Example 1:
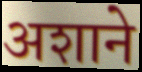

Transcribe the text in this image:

अशाने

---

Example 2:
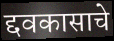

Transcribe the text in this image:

द्दवकासाचे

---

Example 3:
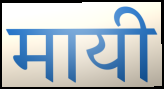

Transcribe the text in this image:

मायी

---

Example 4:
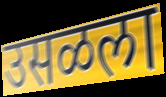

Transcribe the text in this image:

उसळला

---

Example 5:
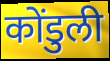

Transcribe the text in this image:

कोंडुली